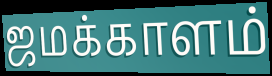
ஜமக்காளம்